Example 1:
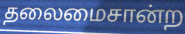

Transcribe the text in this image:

தலைமைசான்ற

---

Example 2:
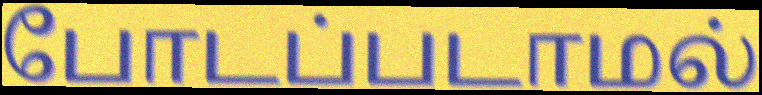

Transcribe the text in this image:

போடப்படாமல்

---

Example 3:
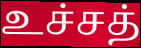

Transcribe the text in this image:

உச்சத்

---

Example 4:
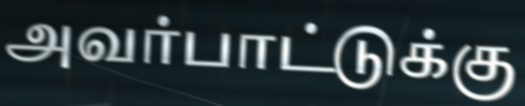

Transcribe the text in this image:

அவர்பாட்டுக்கு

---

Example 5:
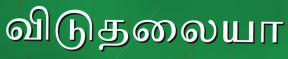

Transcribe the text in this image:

விடுதலையா